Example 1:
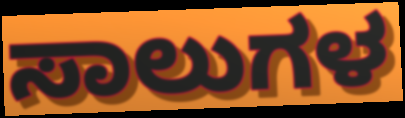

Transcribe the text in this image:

ಸಾಲುಗಳ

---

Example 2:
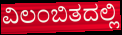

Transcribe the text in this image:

ವಿಲಂಬಿತದಲ್ಲಿ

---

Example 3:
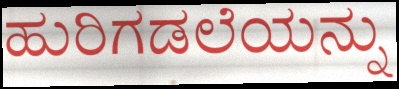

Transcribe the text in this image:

ಹುರಿಗಡಲೆಯನ್ನು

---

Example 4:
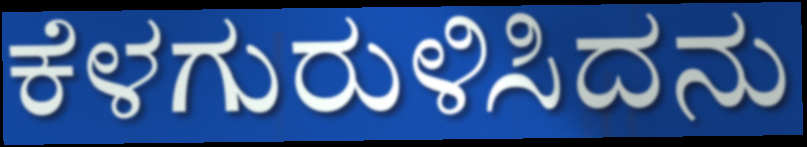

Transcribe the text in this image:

ಕೆಳಗುರುಳಿಸಿದನು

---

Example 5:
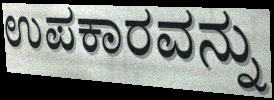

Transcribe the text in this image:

ಉಪಕಾರವನ್ನು